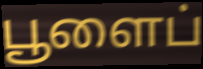
பூளைப்